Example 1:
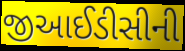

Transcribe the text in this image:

જીઆઈડીસીની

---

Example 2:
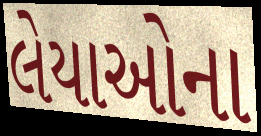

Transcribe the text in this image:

લેયાઓના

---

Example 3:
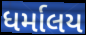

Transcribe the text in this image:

ધર્માલય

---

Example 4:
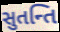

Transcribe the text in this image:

સુતન્તિ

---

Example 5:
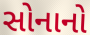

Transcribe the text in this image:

સોનાનો